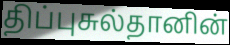
திப்புசுல்தானின்